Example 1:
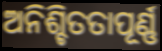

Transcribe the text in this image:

ଅନିଶ୍ଚିତତାପୂର୍ଣ୍ଣ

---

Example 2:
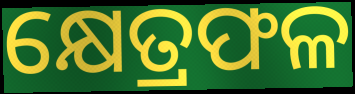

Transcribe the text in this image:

କ୍ଷେତ୍ରଫଳ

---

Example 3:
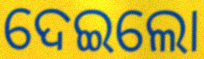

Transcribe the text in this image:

ଦେଇଲୋ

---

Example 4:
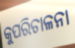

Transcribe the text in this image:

କୁପରିଚାଳନା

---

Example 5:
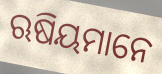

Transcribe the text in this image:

ଋଷିୟମାନେ